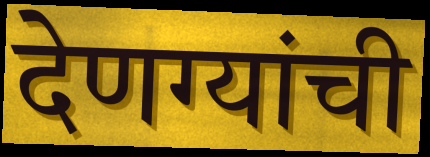
देणग्यांची